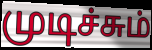
முடிச்சும்